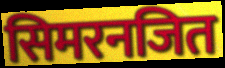
सिमरनजित